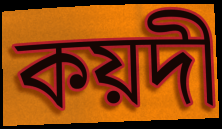
কয়দী